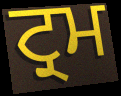
ਟ੍ਰਮ